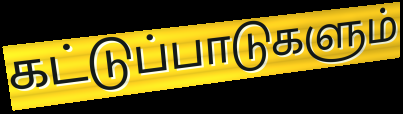
கட்டுப்பாடுகளும்